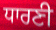
ਧਾਰਣੀ